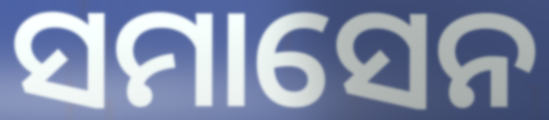
ସମାସେନ